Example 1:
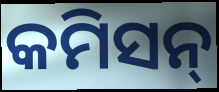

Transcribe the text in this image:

କମିସନ୍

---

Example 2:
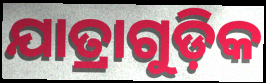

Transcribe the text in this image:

ଯାତ୍ରାଗୁଡ଼ିକ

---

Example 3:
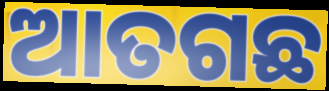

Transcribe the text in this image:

ଆତଗଛ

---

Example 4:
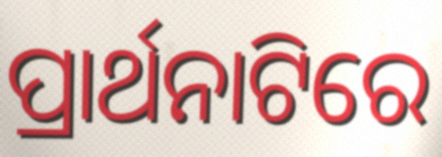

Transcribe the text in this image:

ପ୍ରାର୍ଥନାଟିରେ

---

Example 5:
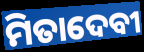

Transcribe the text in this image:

ମିତାଦେବୀ